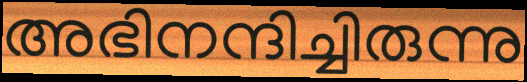
അഭിനന്ദിച്ചിരുന്നു